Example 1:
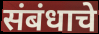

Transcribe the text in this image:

संबंधाचे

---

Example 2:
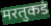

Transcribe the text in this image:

मरतुकडं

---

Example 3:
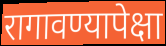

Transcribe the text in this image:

रागावण्यापेक्षा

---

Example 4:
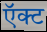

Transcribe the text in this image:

ऍक्ट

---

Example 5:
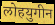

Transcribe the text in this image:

लोहयुगीन